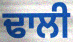
ਢਾਲੀ